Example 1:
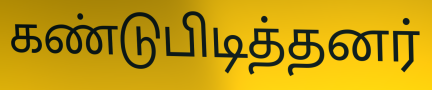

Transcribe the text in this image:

கண்டுபிடித்தனர்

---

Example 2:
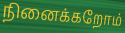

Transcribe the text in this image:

நினைக்கறோம்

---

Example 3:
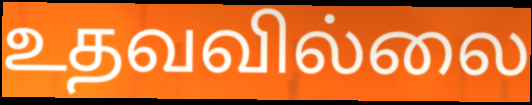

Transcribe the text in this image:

உதவவில்லை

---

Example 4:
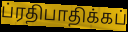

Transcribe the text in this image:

ப்ரதிபாதிக்கப்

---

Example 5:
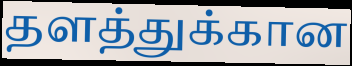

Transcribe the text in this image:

தளத்துக்கான